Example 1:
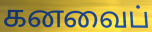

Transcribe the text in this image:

கனவைப்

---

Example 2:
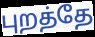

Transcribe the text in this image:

புறத்தே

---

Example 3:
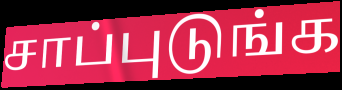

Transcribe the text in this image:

சாப்புடுங்க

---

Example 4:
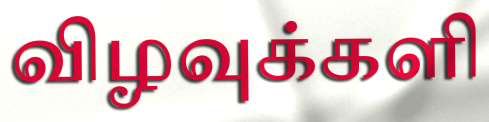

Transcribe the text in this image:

விழவுக்களி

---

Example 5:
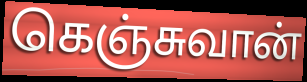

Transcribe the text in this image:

கெஞ்சுவான்